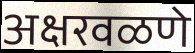
अक्षरवळणे